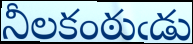
నీలకంఠుఁడు